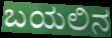
ಬಯಲಿನ